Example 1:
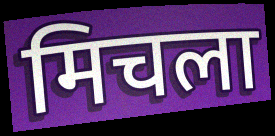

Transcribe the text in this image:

मिचला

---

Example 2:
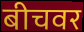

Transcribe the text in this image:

बीचवर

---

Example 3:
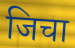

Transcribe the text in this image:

जिचा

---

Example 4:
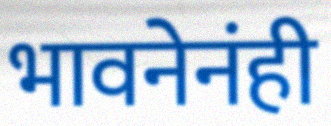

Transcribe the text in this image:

भावनेनंही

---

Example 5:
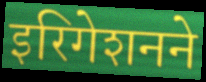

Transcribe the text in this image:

इरिगेशनने